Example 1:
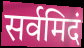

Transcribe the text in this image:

सर्वमिदं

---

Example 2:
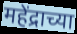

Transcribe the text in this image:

महेंद्राच्या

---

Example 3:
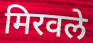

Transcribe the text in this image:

मिरवले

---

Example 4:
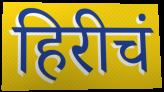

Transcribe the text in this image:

हिरीचं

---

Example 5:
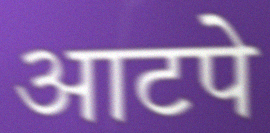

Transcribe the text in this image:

आटपे